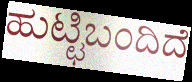
ಹುಟ್ಟಿಬಂದಿದೆ